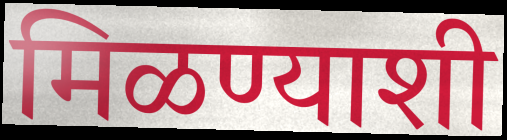
मिळण्याशी